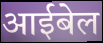
आईबेल